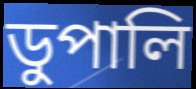
ডুপালি